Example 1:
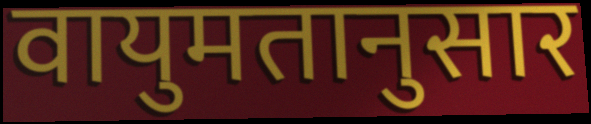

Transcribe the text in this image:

वायुमतानुसार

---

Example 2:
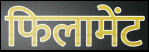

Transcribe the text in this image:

फिलामेंट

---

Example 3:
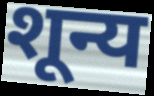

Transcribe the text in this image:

शून्य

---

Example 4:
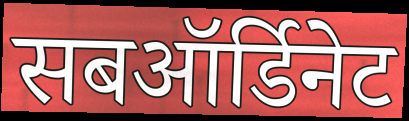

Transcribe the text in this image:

सबऑर्डिनेट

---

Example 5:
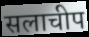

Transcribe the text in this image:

सलाचीप